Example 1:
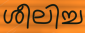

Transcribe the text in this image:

ശീലിച്ച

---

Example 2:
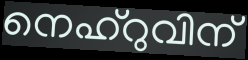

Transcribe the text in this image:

നെഹ്റുവിന്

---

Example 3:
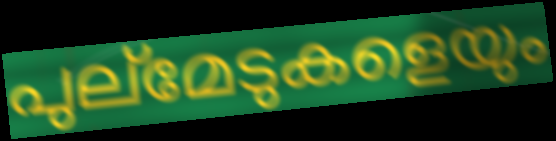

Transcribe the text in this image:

പുല്മേടുകളെയും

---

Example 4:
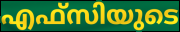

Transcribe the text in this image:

എഫ്സിയുടെ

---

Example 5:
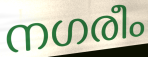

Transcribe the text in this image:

നഗരീം